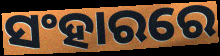
ସଂହାରରେ